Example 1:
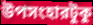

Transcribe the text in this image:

উপসংহারটুকু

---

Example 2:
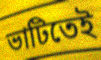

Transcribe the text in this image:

ভাটিতেই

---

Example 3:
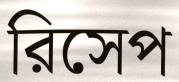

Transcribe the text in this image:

রিসেপ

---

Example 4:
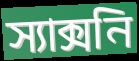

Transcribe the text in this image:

স্যাক্সনি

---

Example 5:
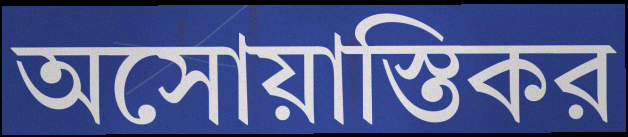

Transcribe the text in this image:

অসোয়াস্তিকর